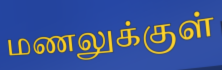
மணலுக்குள்